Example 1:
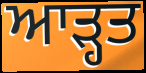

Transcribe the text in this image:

ਆੜ੍ਹਤ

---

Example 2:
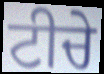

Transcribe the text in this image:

ਟੀਚੇ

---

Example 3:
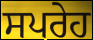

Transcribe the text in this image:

ਸਪਰੇਹ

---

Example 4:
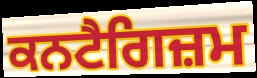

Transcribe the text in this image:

ਕਨਟੈਗਿਜ਼ਮ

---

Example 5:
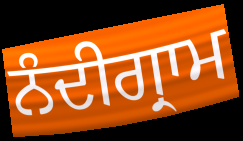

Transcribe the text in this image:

ਨੰਦੀਗ੍ਰਾਮ